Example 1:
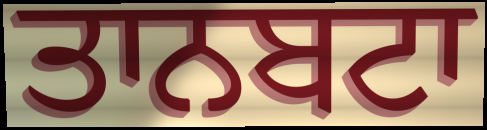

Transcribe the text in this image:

ਤਾਨਬਟਾ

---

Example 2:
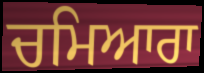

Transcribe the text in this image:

ਚਮਿਆਰਾ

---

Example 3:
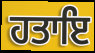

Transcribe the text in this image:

ਹਤਾਇ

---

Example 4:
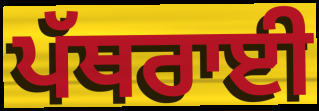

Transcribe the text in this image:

ਪੱਥਰਾਈ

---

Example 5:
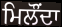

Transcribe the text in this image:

ਮਿਲੌਂਦਾ